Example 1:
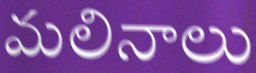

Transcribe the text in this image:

మలినాలు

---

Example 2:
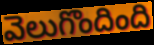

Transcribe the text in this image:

వెలుగొందింది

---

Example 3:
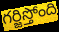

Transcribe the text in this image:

గర్జిస్తోంది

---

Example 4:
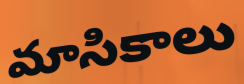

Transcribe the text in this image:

మాసికాలు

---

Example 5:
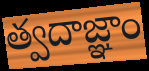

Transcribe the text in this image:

త్వదాజ్ఞాం